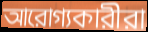
আরোগ্যকারীরা